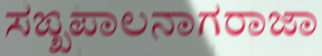
ಸಙ್ಖಪಾಲನಾಗರಾಜಾ